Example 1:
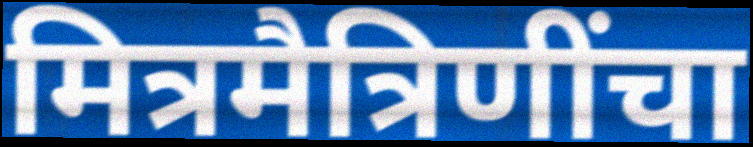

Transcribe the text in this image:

मित्रमैत्रिणींचा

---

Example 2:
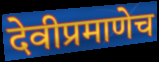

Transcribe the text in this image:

देवीप्रमाणेच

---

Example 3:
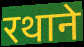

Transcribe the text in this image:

रथाने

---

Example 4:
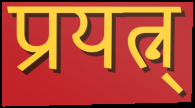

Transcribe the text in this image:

प्रयत्न्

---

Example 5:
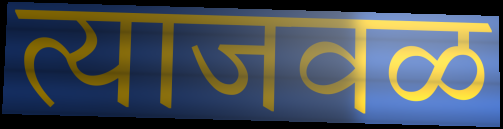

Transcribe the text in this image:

त्याजवळ